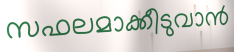
സഫലമാക്കീടുവാൻ